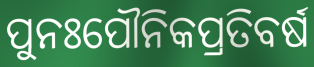
ପୁନଃପୌନିକପ୍ରତିବର୍ଷ